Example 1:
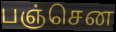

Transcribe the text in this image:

பஞ்சென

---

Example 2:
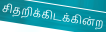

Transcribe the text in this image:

சிதறிக்கிடக்கின்ற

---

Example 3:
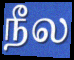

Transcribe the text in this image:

நீல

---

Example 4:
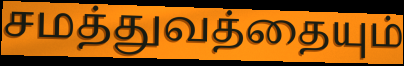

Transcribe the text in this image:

சமத்துவத்தையும்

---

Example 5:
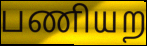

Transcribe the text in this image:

பணியற